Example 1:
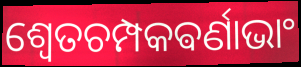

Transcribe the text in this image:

ଶ୍ଵେତଚମ୍ପକଵର୍ଣାଭାଂ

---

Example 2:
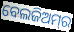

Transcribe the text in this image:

ବେଲଜିଅମ୍‌ର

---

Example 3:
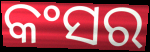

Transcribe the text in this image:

କଂସର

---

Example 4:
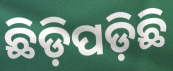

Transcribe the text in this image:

ଛିଡ଼ିପଡ଼ିଛି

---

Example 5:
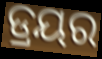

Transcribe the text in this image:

ଡ୍ରୟର